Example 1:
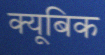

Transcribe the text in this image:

क्यूबिक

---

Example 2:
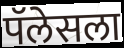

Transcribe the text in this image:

पॅलेसला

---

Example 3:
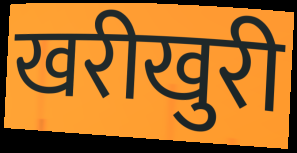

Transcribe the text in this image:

खरीखुरी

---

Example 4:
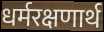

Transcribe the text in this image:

धर्मरक्षणार्थ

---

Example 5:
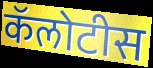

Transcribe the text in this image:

कॅलोटीस